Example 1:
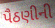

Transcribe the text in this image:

પૈઠણીની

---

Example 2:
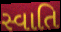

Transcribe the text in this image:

સ્વાતિ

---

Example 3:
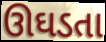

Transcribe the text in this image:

ઊઘડતા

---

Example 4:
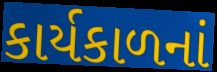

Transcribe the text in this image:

કાર્યકાળનાં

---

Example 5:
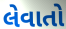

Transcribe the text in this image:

લેવાતો